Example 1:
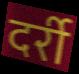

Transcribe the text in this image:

दर्री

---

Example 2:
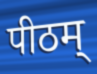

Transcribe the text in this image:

पीठम्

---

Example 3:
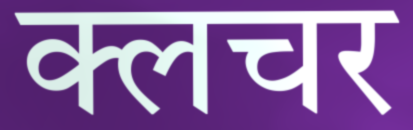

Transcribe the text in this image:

क्लचर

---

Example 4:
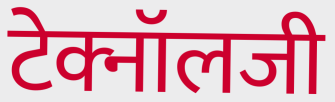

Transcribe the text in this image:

टेक्‍नॉलजी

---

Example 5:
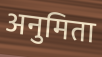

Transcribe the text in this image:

अनुमिता